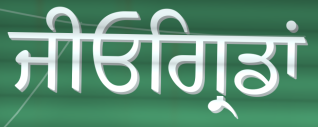
ਜੀਓਗ੍ਰਿਡਾਂ